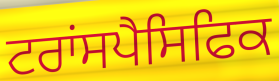
ਟਰਾਂਸਪੈਸਿਫਿਕ